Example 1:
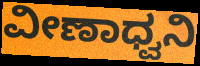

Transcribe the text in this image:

ವೀಣಾಧ್ವನಿ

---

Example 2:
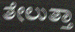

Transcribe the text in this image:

ತೇಲುತ್ತಾ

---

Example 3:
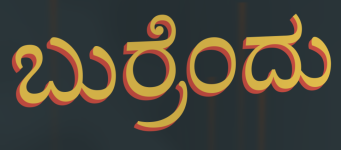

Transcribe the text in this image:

ಬುರ್ರೆಂದು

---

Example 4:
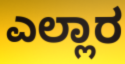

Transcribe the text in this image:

ಎಲ್ಲಾರ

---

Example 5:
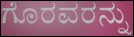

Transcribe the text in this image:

ಗೊರವರನ್ನು